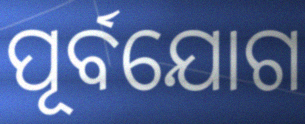
ପୂର୍ବଯୋଗ